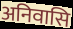
अनिवासि